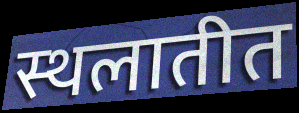
स्थलातीत